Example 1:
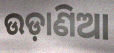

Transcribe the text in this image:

ଉଡ଼ାଣିଆ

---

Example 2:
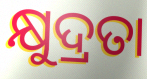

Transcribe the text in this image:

କ୍ଷୁଦ୍ରତା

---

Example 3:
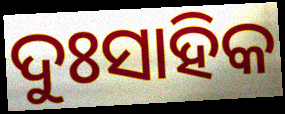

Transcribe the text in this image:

ଦୁଃସାହିକ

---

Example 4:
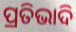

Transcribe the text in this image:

ପ୍ରତିଭାଦି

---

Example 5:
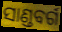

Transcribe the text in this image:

ସାଣ୍ଡବର୍ଗ